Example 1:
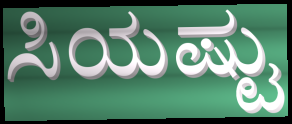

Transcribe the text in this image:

ಸಿಯಷ್ಟು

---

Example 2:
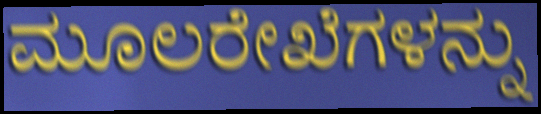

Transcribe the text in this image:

ಮೂಲರೇಖೆಗಳನ್ನು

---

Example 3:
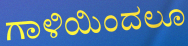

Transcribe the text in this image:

ಗಾಳಿಯಿಂದಲೂ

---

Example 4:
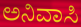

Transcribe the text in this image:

ಅನಿವಾಸಿ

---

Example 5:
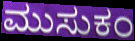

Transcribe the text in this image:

ಮುಸುಕಂ